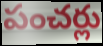
పంచర్లు